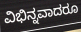
ವಿಭಿನ್ನವಾದರೂ